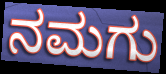
ನಮಗು